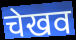
चेखव